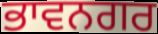
ਭਾਵਨਗਰ